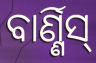
ବାର୍ଣ୍ଣିସ୍